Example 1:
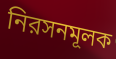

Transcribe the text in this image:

নিরসনমূলক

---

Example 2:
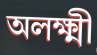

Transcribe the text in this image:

অলক্ষ্মী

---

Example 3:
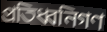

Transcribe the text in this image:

প্রতিধ্বনিগণ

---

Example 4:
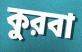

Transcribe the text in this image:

কুরবা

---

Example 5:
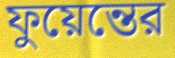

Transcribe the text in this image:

ফুয়েন্তের